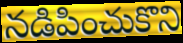
నడిపించుకొని